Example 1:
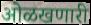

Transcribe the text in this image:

ओळखणारी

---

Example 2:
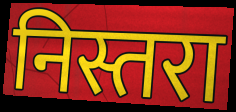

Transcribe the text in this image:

निस्तरा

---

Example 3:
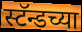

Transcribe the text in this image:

स्टॅन्डच्या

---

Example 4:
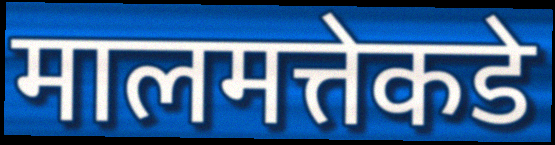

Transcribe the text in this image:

मालमत्तेकडे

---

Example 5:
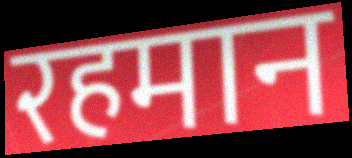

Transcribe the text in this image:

रहमान